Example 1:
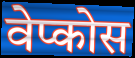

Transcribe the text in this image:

वेप्कोस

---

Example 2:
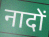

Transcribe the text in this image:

नादों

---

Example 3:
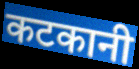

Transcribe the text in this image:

कटकानी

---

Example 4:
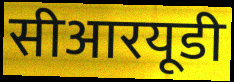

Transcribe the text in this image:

सीआरयूडी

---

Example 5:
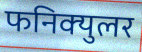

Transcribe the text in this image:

फनिक्युलर